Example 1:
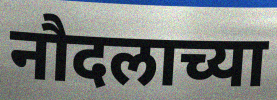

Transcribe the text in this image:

नौदलाच्या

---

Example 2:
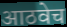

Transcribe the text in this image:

आठवेच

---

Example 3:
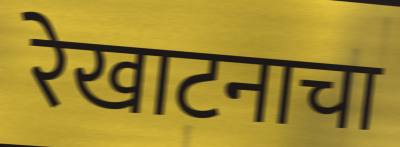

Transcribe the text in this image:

रेखाटनाचा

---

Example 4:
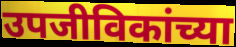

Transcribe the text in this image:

उपजीविकांच्या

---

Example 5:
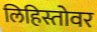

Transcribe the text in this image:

लिहिस्तोवर